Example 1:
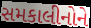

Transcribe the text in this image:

સમકાલીનોને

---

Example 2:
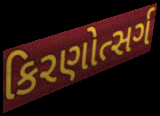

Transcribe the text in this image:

કિરણોત્સર્ગ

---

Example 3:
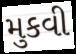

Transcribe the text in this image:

મુકવી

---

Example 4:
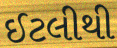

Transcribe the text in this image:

ઈટલીથી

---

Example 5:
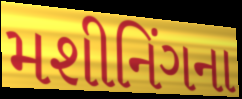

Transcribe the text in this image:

મશીનિંગના